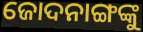
ଜୋଦନାଙ୍ଗଙ୍କୁ